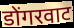
डोंगरवाट